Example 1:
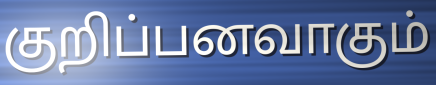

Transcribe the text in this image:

குறிப்பனவாகும்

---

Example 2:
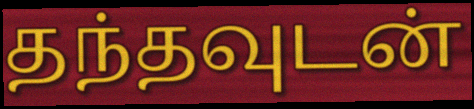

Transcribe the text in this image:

தந்தவுடன்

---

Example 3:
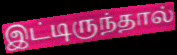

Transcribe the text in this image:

இட்டிருந்தால்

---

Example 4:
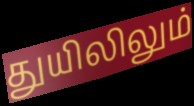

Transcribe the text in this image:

துயிலிலும்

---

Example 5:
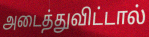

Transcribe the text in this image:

அடைத்துவிட்டால்